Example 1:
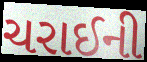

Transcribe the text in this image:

ચરાઈની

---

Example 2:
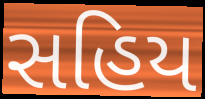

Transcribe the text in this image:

સહિય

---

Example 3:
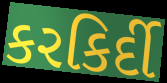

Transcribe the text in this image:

કરકિર્દી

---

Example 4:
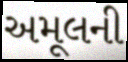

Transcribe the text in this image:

અમૂલની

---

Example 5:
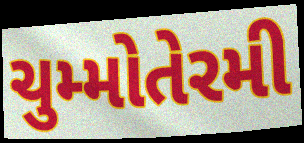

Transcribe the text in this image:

ચુમ્મોતેરમી